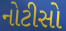
નોટીસો